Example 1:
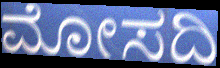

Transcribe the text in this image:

ಮೋಸದಿ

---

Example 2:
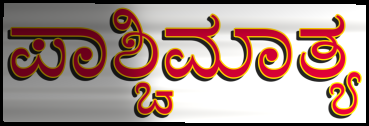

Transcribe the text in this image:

ಪಾಶ್ಚಿಮಾತ್ಯ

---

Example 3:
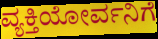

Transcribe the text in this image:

ವ್ಯಕ್ತಿಯೋರ್ವನಿಗೆ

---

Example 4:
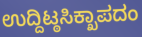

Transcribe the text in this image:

ಉದ್ದಿಟ್ಠಸಿಕ್ಖಾಪದಂ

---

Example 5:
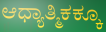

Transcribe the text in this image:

ಆಧ್ಯಾತ್ಮಿಕಕ್ಕೂ